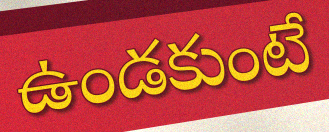
ఉండకుంటే